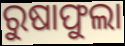
ରୁଷାଫୁଲା